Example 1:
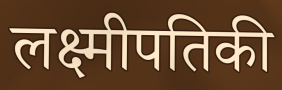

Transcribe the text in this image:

लक्ष्मीपतिकी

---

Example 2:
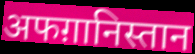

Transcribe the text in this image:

अफग़ानिस्तान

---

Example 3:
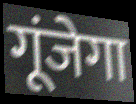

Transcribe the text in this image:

गूंजेगा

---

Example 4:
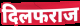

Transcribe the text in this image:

दिलफराज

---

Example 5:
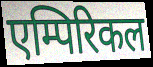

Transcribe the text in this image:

एम्पिरिकल